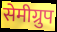
सेमीग्रुप